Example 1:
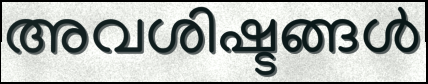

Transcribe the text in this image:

അവശിഷ്ടങ്ങൾ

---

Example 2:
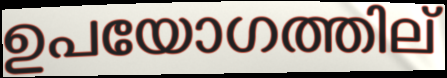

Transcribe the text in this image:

ഉപയോഗത്തില്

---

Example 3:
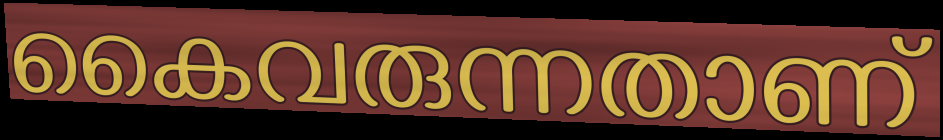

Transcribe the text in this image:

കൈവരുന്നതാണ്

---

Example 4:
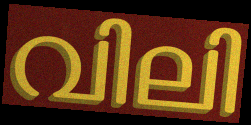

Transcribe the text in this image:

വിലി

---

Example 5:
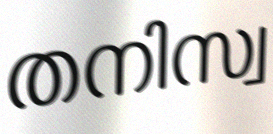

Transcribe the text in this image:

തനിസ്വ